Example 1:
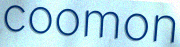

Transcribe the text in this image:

coomon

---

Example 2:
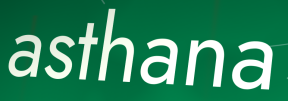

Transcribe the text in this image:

asthana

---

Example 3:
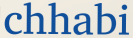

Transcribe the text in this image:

chhabi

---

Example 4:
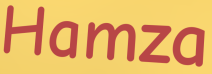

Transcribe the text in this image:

Hamza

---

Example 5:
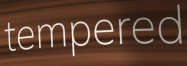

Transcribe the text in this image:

tempered